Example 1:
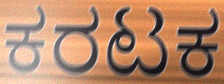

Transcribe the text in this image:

ಕರಟಕ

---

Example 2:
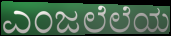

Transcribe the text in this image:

ಎಂಜಲೆಲೆಯ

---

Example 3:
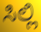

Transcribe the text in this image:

ಸಿಲ್ಲಿ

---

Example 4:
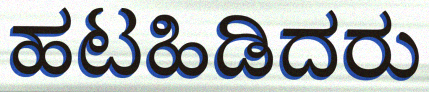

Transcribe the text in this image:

ಹಟಹಿಡಿದರು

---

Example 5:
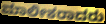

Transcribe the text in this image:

ಮಾಲೀಕರಾದರು